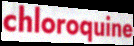
chloroquine